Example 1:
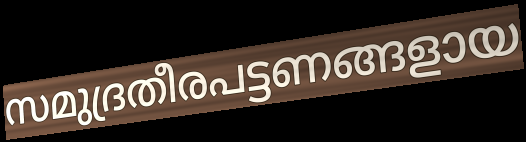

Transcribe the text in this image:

സമുദ്രതീരപട്ടണങ്ങളായ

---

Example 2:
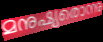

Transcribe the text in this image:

മനുഷ്യരൊന്നു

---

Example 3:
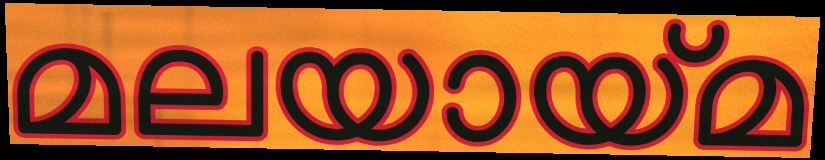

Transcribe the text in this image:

മലയായ്മ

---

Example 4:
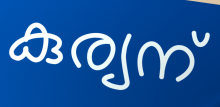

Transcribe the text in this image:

കുര്യന്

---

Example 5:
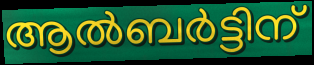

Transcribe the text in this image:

ആൽബർട്ടിന്